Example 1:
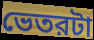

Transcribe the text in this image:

ভেতরটা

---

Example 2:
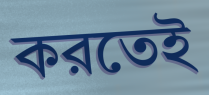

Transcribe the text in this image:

করতেই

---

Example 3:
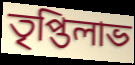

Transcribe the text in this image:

তৃপ্তিলাভ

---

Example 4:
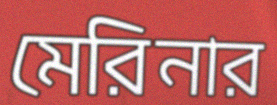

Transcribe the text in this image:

মেরিনার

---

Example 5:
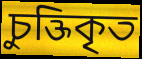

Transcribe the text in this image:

চুক্তিকৃত